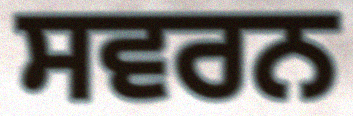
ਸਵਰਨ